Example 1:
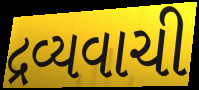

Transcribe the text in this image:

દ્રવ્યવાચી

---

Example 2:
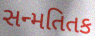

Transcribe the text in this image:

સન્મતિતક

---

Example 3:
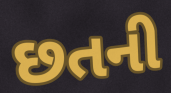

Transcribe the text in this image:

છતની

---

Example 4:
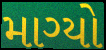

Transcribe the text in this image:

માગ્યો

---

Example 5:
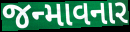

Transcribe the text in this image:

જન્માવનાર